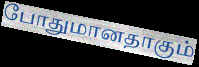
போதுமானதாகும்